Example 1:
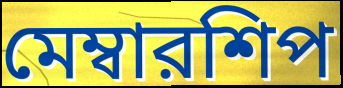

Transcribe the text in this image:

মেম্বারশিপ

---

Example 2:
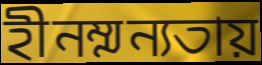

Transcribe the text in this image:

হীনম্মন্যতায়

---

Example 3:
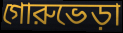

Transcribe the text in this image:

গোরুভেড়া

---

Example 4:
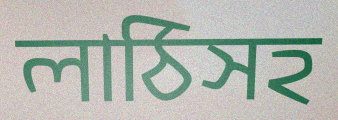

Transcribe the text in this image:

লাঠিসহ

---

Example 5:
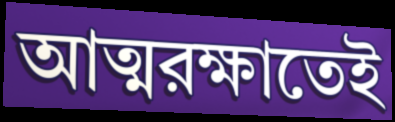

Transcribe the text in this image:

আত্মরক্ষাতেই